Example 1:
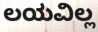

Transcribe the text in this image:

ಲಯವಿಲ್ಲ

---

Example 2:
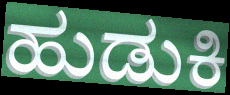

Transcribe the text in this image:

ಹುಡುಕಿ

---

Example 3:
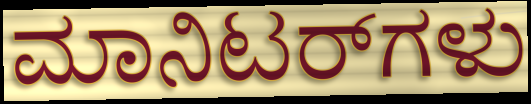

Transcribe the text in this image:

ಮಾನಿಟರ್‌ಗಳು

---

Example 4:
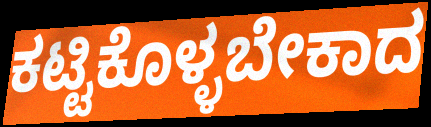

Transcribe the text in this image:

ಕಟ್ಟಿಕೊಳ್ಳಬೇಕಾದ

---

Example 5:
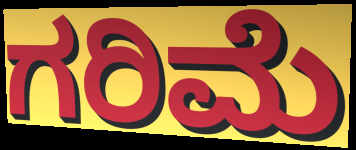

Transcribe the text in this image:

ಗರಿಮೆ